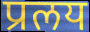
प्रलय